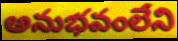
అనుభవంలేని